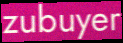
zubuyer